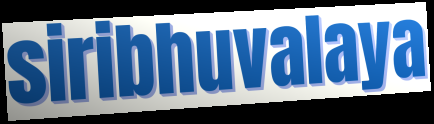
siribhuvalaya